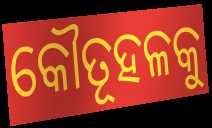
କୌତୂହଳକୁ